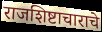
राजशिष्टाचाराचे